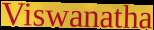
Viswanatha